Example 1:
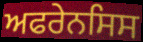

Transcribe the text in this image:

ਅਫਰੇਨਸਿਸ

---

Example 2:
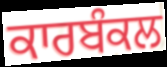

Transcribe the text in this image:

ਕਾਰਬੰਕਲ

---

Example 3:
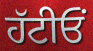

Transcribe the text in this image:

ਹੱਟੀਓਂ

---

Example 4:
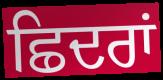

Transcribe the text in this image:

ਛਿਦਰਾਂ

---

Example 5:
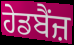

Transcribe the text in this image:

ਹੇਡਬੈਂਜ਼